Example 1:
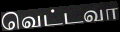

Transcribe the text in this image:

வெட்டவா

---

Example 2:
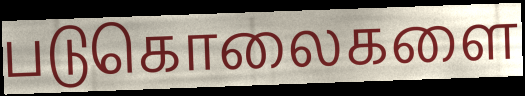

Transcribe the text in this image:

படுகொலைகளை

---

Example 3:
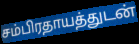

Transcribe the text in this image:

சம்பிரதாயத்துடன்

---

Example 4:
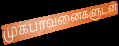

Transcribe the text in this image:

முகபாவனைகளுடன்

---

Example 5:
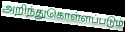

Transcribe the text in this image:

அறிந்துகொள்ளப்படும்